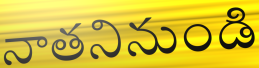
నాతనినుండి